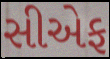
સીએફ